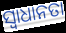
ସ୍ୱାଧାନତା